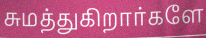
சுமத்துகிறார்களே